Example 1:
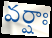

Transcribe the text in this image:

వర్షాః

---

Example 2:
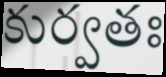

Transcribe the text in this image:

కుర్వతః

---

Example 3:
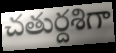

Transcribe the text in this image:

చతుర్దశిగా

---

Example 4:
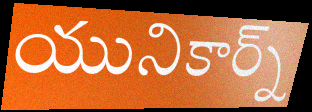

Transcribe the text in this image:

యునికార్న్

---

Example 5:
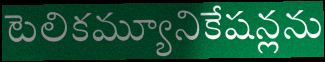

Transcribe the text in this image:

టెలికమ్యూనికేషన్లను